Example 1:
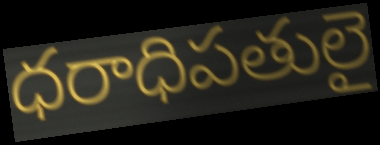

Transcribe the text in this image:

ధరాధిపతులై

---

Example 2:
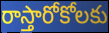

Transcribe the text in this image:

రాస్తారోకోలకు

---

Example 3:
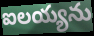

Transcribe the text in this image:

ఐలయ్యను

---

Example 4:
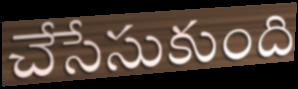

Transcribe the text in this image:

చేసేసుకుంది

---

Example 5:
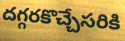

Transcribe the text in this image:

దగ్గరకొచ్చేసరికి